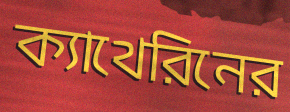
ক্যাথেরিনের